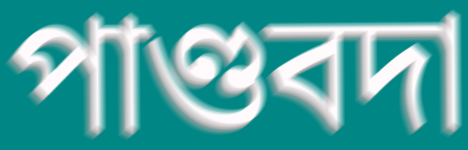
পাণ্ডবদা